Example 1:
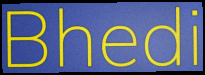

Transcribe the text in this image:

Bhedi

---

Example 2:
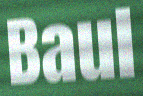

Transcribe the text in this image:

Baul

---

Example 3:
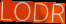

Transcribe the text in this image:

LODR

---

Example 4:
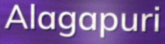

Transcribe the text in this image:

Alagapuri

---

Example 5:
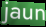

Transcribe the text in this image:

jaun